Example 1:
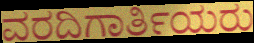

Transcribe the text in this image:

ವರದಿಗಾರ್ತಿಯರು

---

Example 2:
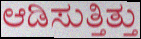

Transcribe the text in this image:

ಆಡಿಸುತ್ತಿತ್ತು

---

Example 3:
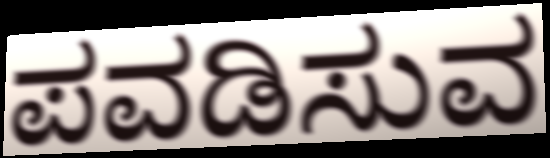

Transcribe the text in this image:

ಪವಡಿಸುವ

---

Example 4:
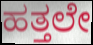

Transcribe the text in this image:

ಹತ್ತಲೇ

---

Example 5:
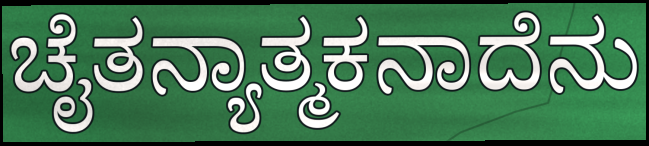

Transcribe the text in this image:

ಚೈತನ್ಯಾತ್ಮಕನಾದೆನು